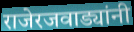
राजेरजवाड्यांनी